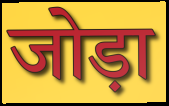
जोड़ा